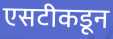
एसटीकडून